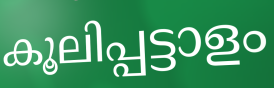
കൂലിപ്പട്ടാളം